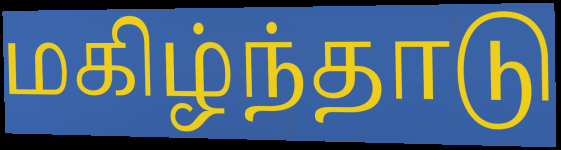
மகிழ்ந்தாடு